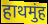
हाथमुंह